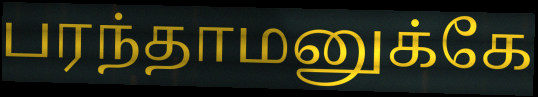
பரந்தாமனுக்கே